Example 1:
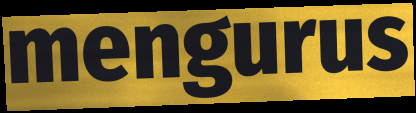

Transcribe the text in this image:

mengurus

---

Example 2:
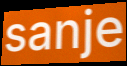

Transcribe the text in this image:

sanje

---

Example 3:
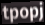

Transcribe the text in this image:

tpopj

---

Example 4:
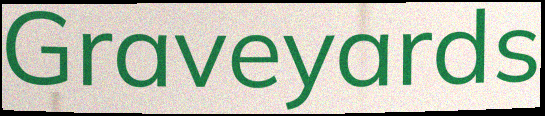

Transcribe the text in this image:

Graveyards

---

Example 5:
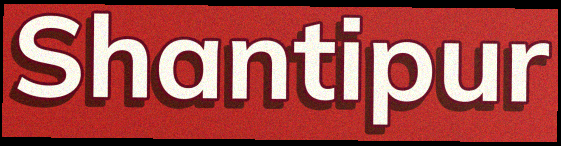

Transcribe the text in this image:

Shantipur